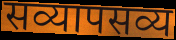
सव्यापसव्य